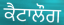
ਕੈਟਾਲੌਗ